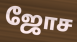
ஜோச